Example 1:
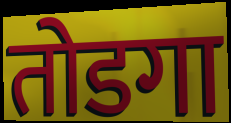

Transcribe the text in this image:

तोडगा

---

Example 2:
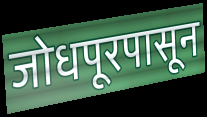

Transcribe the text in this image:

जोधपूरपासून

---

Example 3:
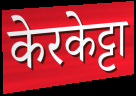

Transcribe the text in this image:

केरकेट्टा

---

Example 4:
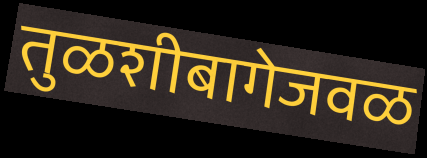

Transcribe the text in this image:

तुळशीबागेजवळ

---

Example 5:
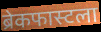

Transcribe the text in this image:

ब्रेकफास्टला